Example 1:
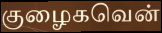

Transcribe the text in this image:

குழைகவென்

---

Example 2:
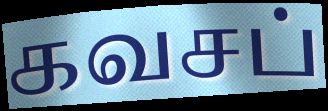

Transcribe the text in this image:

கவசப்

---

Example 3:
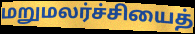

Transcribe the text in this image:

மறுமலர்ச்சியைத்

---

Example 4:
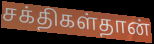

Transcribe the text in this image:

சக்திகள்தான்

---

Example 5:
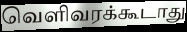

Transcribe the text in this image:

வெளிவரக்கூடாது